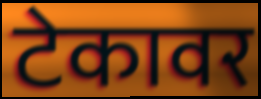
टेकावर